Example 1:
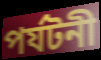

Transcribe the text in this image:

পর্যটনী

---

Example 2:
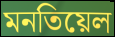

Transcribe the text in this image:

মনতিয়েল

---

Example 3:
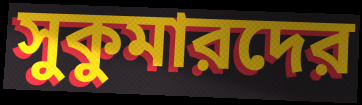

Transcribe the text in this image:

সুকুমারদের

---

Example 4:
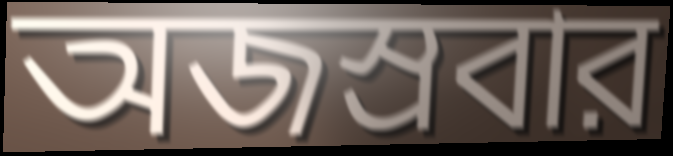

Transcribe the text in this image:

অজস্রবার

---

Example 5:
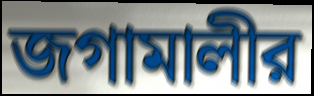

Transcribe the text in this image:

জগামালীর